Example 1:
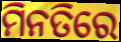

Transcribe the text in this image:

ମିନତିରେ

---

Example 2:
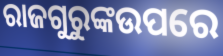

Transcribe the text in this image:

ରାଜଗୁରୁଙ୍କଉପରେ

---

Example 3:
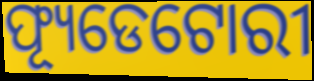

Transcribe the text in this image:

ଫ୍ୟୂଡେଟୋରୀ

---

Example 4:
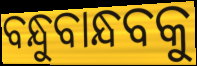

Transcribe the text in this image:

ବନ୍ଧୁବାନ୍ଧବକୁ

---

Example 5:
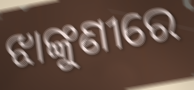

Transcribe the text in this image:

ଝାଙ୍କୁଣୀରେ